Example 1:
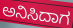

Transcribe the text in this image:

ಅನಿಸಿದಾಗ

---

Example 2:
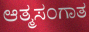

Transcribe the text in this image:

ಆತ್ಮಸಂಗಾತ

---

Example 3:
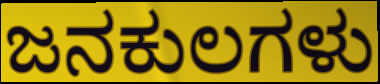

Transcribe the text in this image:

ಜನಕುಲಗಳು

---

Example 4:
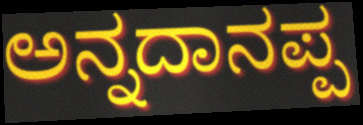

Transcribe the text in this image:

ಅನ್ನದಾನಪ್ಪ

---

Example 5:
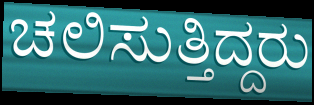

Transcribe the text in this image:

ಚಲಿಸುತ್ತಿದ್ದರು